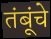
तंबूंचे